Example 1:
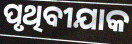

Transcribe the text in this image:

ପୃଥିବୀଯାକ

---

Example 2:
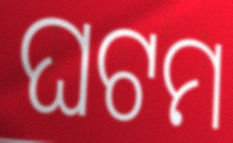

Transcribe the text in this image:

ଘଟମ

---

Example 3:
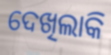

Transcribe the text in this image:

ଦେଖିଲାକି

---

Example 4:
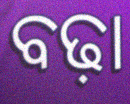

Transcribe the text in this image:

ବଢ଼ା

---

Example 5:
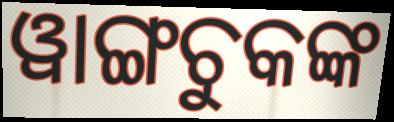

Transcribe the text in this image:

ୱାଙ୍ଗଚୁକଙ୍କ